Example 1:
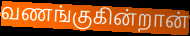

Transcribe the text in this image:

வணங்குகின்றான்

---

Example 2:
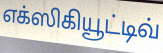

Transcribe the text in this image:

எக்ஸிகியூட்டிவ்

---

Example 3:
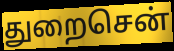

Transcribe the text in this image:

துறைசென்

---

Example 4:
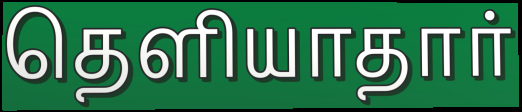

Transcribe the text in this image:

தெளியாதார்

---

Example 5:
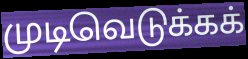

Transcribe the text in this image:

முடிவெடுக்கக்